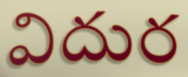
విదుర